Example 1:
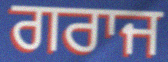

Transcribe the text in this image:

ਗਰਾਜ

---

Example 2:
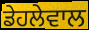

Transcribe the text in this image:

ਡੇਹਲੇਵਾਲ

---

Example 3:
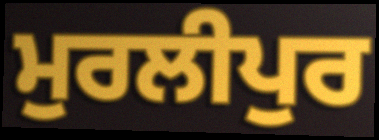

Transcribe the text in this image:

ਮੁਰਲੀਪੁਰ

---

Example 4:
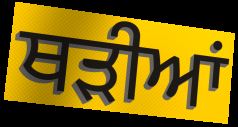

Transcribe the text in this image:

ਥੜੀਆਂ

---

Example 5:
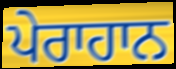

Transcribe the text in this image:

ਪੇਰਾਹਾਨ